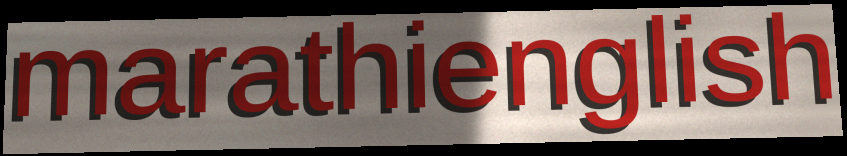
marathienglish